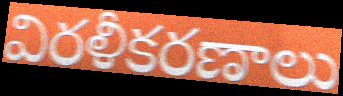
విరళీకరణాలు